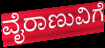
ವೈರಾಣುವಿಗೆ